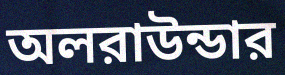
অলরাউন্ডার